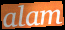
alam